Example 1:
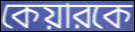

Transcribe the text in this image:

কেয়ারকে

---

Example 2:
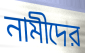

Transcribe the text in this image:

নামীদের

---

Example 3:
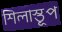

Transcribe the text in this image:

শিলাস্তূপ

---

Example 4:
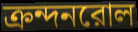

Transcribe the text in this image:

ক্রন্দনরোল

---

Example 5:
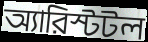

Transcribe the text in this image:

অ্যারিস্টটল